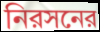
নিরসনের